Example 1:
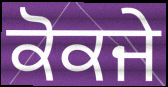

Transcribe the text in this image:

ਕੋਕਜੇ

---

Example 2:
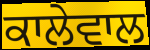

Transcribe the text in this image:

ਕਾਲੇਵਾਲ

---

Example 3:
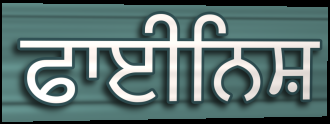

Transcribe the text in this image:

ਫਾਈਨਿਸ਼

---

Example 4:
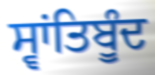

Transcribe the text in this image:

ਸ੍ਵਾਂਤਿਬੂੰਦ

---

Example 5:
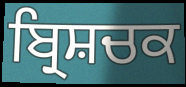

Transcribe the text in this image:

ਬ੍ਰਿਸ਼ਚਕ